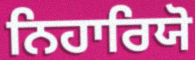
ਨਿਹਾਰਿਯੋ